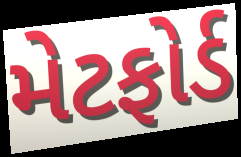
મેટફોર્ડ